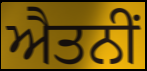
ਐਤਨੀਂ